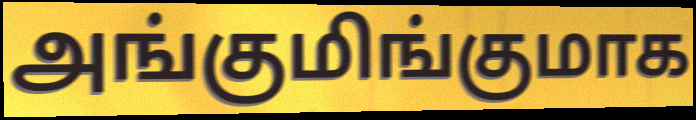
அங்குமிங்குமாக